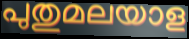
പുതുമലയാള